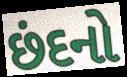
છંદનો